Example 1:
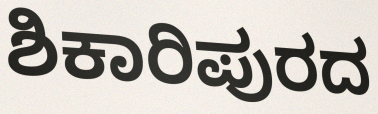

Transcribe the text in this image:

ಶಿಕಾರಿಪುರದ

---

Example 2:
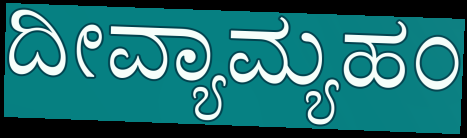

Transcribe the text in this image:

ದೀವ್ಯಾಮ್ಯಹಂ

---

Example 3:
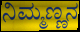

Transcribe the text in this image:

ನಿಮ್ಮಣ್ಣನ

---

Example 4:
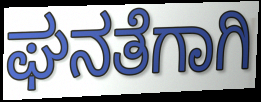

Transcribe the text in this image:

ಘನತೆಗಾಗಿ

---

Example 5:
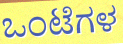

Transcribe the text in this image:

ಒಂಟೆಗಳ